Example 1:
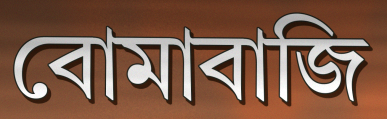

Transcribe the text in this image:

বোমাবাজি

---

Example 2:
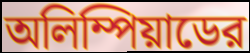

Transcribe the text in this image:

অলিম্পিয়াডের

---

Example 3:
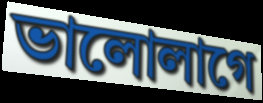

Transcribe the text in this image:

ভালোলাগে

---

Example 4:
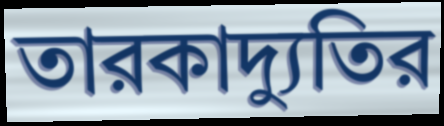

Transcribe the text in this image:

তারকাদ্যুতির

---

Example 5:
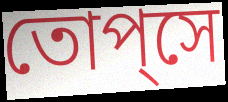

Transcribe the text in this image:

তোপ্‌সে